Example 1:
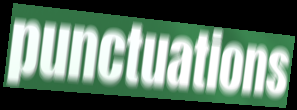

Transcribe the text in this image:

punctuations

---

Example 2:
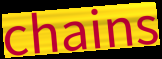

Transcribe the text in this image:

chains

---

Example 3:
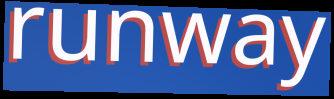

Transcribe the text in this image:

runway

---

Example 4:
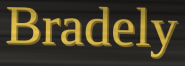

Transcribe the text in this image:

Bradely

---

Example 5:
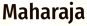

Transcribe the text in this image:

Maharaja